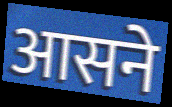
आसने